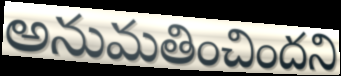
అనుమతించిందని